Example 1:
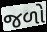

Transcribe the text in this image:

જળો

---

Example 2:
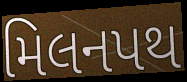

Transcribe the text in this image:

મિલનપથ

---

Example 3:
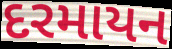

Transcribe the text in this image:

દરમાયન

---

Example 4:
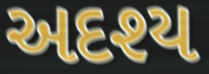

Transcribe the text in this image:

અદશ્ય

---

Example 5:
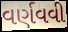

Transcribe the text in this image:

વર્ણવવી